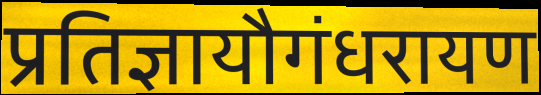
प्रतिज्ञायौगंधरायण